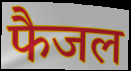
फैजल